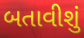
બતાવીશું